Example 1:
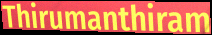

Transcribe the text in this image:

Thirumanthiram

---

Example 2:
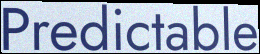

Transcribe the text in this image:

Predictable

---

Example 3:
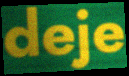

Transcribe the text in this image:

deje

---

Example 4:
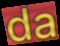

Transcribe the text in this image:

da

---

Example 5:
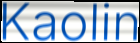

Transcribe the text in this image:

Kaolin